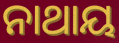
ନାଥାୟ